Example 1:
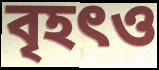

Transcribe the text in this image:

বৃহৎও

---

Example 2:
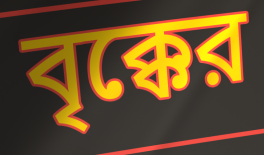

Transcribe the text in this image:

বৃক্কের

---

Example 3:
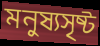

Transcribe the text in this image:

মনুষ্যসৃষ্ট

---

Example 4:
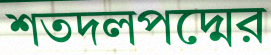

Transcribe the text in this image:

শতদলপদ্মের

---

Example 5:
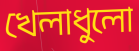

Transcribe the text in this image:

খেলাধুলো